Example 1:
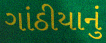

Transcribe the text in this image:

ગાંઠીયાનું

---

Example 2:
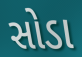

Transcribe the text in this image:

સોડા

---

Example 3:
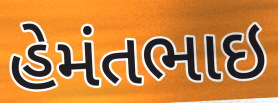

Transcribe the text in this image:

હેમંતભાઇ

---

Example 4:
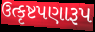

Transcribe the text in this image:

ઉત્કૃષ્ટપણારૂપ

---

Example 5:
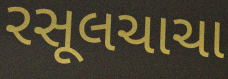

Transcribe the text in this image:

રસૂલચાચા